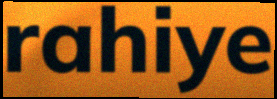
rahiye